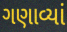
ગણાવ્યાં